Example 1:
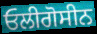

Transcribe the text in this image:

ਓਲੀਗੋਸੀਨ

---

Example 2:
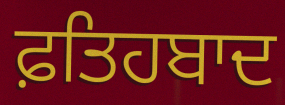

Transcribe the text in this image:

ਫ਼ਤਿਹਬਾਦ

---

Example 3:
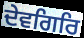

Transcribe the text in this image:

ਦੇਵਗਿਰਿ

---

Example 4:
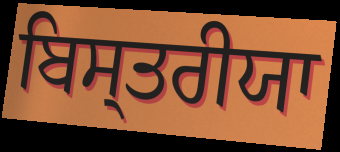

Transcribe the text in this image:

ਬਿਸ੍ਤਰੀਯਾ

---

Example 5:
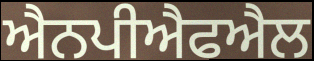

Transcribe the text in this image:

ਐਨਪੀਐਫਐਲ